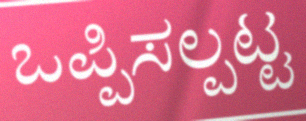
ಒಪ್ಪಿಸಲ್ಪಟ್ಟ